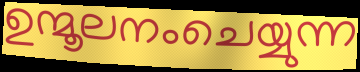
ഉന്മൂലനംചെയ്യുന്ന